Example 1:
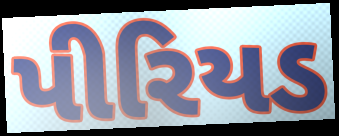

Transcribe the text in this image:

પીરિયડ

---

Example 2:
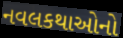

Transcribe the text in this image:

નવલકથાઓનો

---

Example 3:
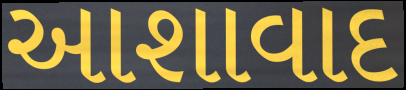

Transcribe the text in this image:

આશાવાદ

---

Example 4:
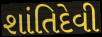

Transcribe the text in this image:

શાંતિદેવી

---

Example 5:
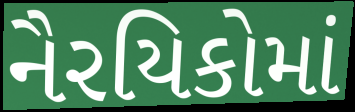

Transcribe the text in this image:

નૈરયિકોમાં